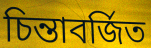
চিন্তাবর্জিত